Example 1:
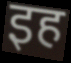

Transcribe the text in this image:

इह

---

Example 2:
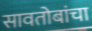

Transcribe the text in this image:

सावतोबांचा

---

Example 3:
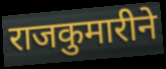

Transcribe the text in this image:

राजकुमारीने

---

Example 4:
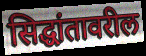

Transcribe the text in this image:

सिद्धांतावरील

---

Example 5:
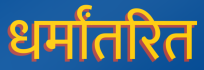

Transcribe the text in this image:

धर्मांतरित